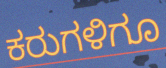
ಕರುಗಳಿಗೂ